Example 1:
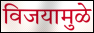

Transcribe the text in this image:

विजयामुळे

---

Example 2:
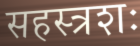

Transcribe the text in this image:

सहस्त्रशः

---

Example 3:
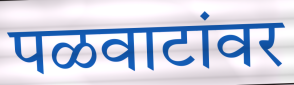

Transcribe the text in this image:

पळवाटांवर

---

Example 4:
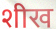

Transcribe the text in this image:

शीख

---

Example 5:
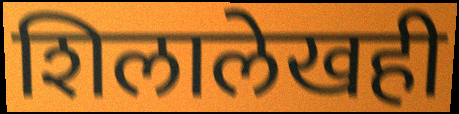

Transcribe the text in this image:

शिलालेखही